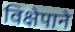
विक्षेपाने